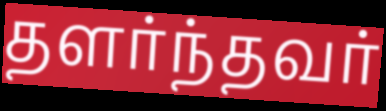
தளர்ந்தவர்